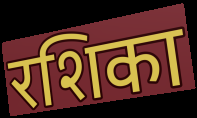
रशिका